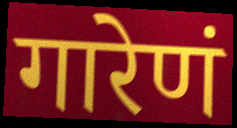
गारेणं